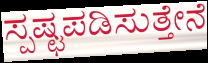
ಸ್ಪಷ್ಟಪಡಿಸುತ್ತೇನೆ